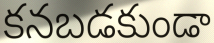
కనబడకుండా